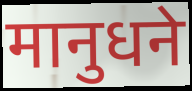
मानुधने